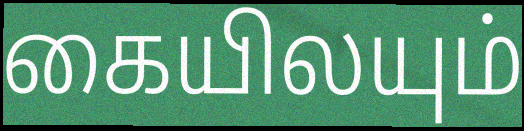
கையிலயும்